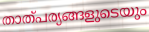
താത്പര്യങ്ങളുടെയും